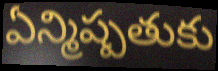
ఏన్మిష్పతుకు